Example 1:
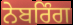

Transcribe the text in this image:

ਨੇਬਰਿੰਗ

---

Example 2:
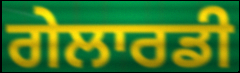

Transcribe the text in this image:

ਗੇਲਾਰਡੀ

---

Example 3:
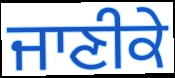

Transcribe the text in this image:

ਜਾਣੀਕੇ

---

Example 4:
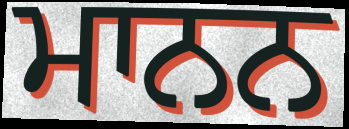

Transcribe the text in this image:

ਮਾਨਨ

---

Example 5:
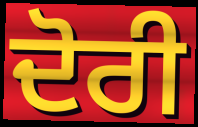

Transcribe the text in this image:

ਦੋਰੀ